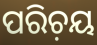
ପରିଚ଼ୟ